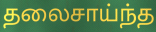
தலைசாய்ந்த